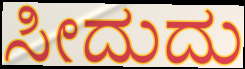
ಸೀದುದು